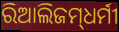
ରିଆଲିଜମ୍‌ଧର୍ମୀ